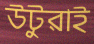
উটুৱাই